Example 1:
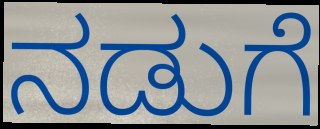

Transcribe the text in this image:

ನಡುಗೆ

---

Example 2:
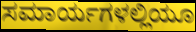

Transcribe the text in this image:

ಸಮಾರ್ಯಗಳಲ್ಲಿಯೂ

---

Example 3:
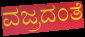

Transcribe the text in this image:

ವಜ್ರದಂತೆ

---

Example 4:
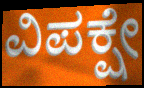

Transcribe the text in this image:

ವಿಪಕ್ಷೇ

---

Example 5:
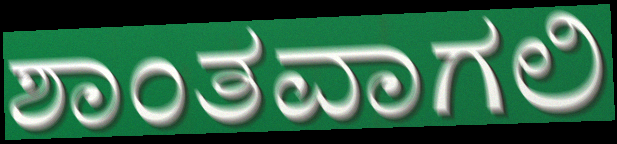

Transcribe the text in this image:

ಶಾಂತವಾಗಲಿ